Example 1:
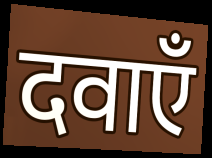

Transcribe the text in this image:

दवाएँ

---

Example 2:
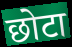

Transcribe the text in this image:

छोटा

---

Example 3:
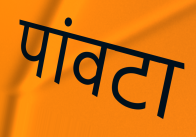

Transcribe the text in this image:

पांवटा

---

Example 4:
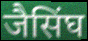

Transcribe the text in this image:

जैसिंघ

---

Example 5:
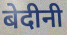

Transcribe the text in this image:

बेदीनी